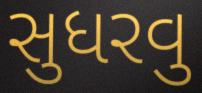
સુધરવુ